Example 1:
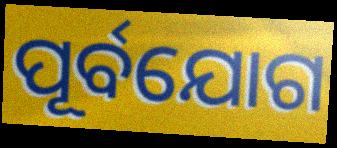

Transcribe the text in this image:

ପୂର୍ବଯୋଗ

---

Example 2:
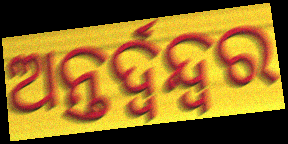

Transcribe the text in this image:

ଅନ୍ତର୍ଦ୍ୱନ୍ଦ୍ୱର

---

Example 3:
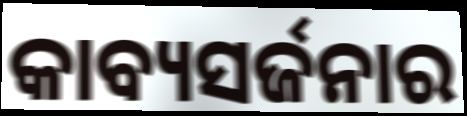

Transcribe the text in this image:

କାବ୍ୟସର୍ଜନାର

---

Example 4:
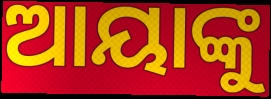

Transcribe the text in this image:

ଆୟାଙ୍କୁ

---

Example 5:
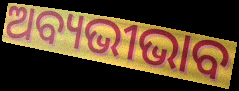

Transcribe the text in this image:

ଅବ୍ୟଭୀଭାବ